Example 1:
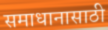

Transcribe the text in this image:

समाधानासाठी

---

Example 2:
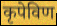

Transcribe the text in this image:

कृपेविण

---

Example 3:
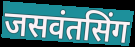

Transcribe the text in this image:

जसवंतसिंग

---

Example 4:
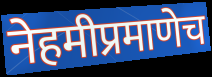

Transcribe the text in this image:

नेहमीप्रमाणेच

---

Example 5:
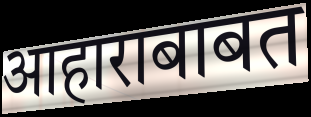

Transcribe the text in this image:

आहाराबाबत